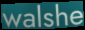
walshe